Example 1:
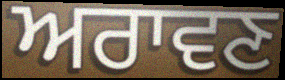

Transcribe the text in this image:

ਅਰਾਵਣ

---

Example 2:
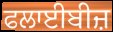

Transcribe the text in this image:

ਫਲਾਈਬੀਜ਼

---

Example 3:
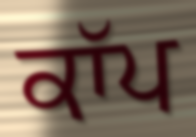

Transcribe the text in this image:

ਕਾੱਪ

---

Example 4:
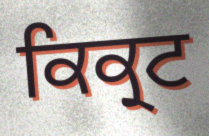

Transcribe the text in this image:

ਕਿਕ੍ਰਟ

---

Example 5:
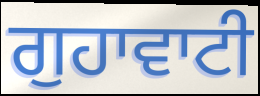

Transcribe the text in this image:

ਗੁਹਾਵਾਟੀ